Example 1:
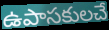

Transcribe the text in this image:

ఉపాసకులచే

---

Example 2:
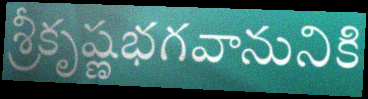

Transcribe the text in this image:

శ్రీకృష్ణభగవానునికి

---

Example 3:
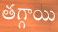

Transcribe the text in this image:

తగ్గాయి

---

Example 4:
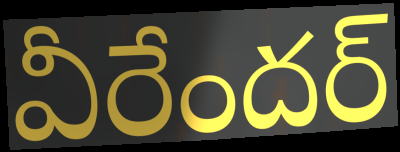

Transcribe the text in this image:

వీరేందర్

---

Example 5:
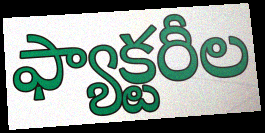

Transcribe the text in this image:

ఫ్యాక్టరీల